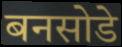
बनसोडे